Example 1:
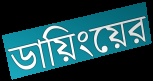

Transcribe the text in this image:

ডায়িংয়ের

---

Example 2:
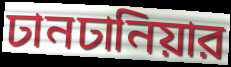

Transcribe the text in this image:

ঢানঢানিয়ার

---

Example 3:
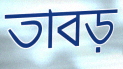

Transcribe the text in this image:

তাবড়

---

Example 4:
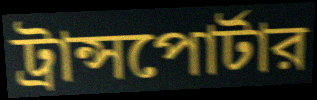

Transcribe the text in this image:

ট্রান্সপোর্টার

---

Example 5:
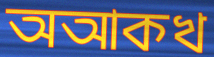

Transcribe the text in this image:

অআকখ